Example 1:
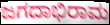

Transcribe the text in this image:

ಜಗದಾಭಿರಾಮ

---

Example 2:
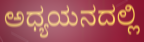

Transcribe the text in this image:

ಅಧ್ಯಯನದಲ್ಲಿ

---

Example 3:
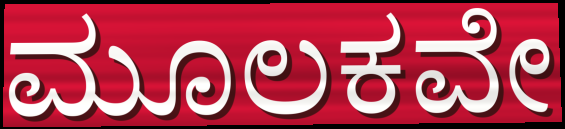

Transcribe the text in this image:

ಮೂಲಕವೇ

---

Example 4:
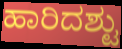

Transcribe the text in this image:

ಹಾರಿದಶ್ಟು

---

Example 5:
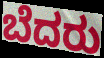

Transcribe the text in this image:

ಬೆದರು